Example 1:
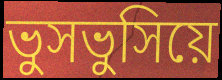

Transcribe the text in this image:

ভুসভুসিয়ে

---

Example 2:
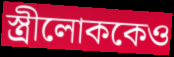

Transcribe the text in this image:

স্ত্রীলোককেও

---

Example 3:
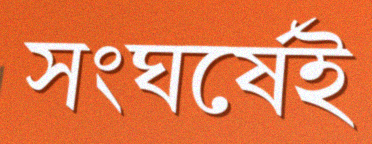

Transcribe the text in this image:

সংঘর্ষেই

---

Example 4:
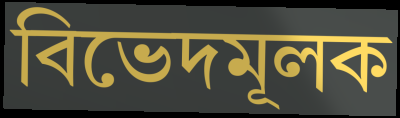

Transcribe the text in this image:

বিভেদমূলক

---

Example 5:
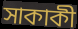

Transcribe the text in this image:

সাকাকী